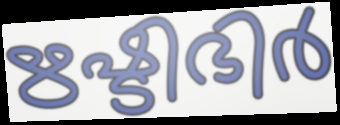
ഋഷ്ടിഭിർ